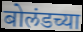
बोलंडच्या